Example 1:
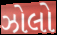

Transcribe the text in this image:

ઝોલો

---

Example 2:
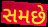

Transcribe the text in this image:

સમછે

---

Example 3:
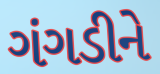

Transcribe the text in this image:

ગંગડીને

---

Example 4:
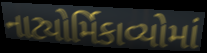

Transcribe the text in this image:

નાટ્યોર્મિકાવ્યોમાં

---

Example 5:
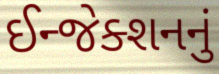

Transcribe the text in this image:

ઈન્જેક્શનનું